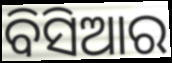
ବିସିଆର